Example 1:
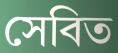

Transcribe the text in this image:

সেবিত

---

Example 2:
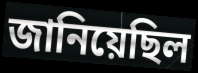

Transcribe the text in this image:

জানিয়েছিল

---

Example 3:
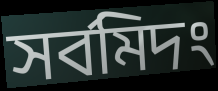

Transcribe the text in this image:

সর্বমিদং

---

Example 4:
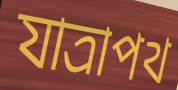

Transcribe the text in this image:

যাত্রাপথ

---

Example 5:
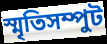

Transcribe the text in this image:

স্মৃতিসম্পুট